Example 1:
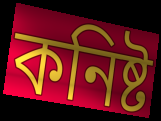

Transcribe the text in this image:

কনিষ্ট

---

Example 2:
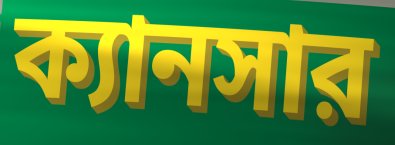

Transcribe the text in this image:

ক্যানসার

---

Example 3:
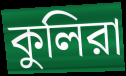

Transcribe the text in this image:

কুলিরা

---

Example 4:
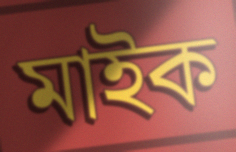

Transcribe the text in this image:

মাইক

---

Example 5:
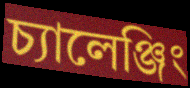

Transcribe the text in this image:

চ্যালেঞ্জিং